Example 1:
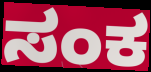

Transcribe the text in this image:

ಸಂಕ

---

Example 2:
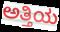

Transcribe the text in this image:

ಅತ್ತಿಯ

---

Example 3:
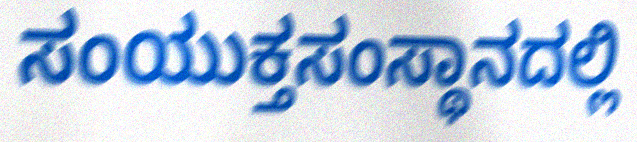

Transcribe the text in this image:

ಸಂಯುಕ್ತಸಂಸ್ಥಾನದಲ್ಲಿ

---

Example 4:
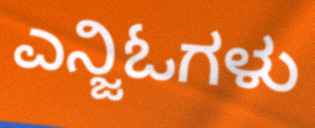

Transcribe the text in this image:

ಎನ್ಜಿಓಗಳು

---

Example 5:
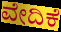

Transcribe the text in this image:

ವೇದಿಕೆ